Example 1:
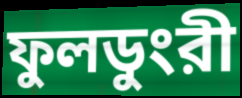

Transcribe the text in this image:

ফুলডুংরী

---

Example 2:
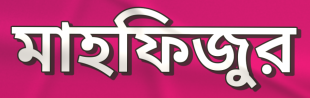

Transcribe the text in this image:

মাহফিজুর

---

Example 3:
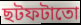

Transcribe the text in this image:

ছটফটাতো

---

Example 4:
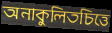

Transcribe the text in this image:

অনাকুলিতচিত্তে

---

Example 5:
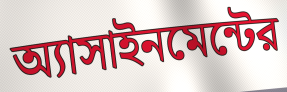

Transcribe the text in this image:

অ্যাসাইনমেন্টের